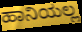
ಹಾನಿಯಲ್ಲ